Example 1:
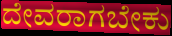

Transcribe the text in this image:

ದೇವರಾಗಬೇಕು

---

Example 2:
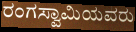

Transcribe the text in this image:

ರಂಗಸ್ವಾಮಿಯವರು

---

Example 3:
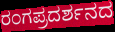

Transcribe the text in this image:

ರಂಗಪ್ರದರ್ಶನದ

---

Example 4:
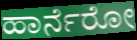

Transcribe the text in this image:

ಹಾರ್ನೆರೋ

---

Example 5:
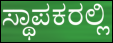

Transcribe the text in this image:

ಸ್ಥಾಪಕರಲ್ಲಿ